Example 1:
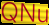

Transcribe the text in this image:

QNu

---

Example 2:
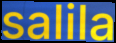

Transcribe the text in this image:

salila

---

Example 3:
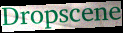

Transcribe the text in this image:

Dropscene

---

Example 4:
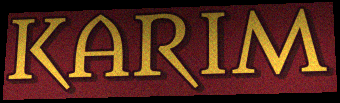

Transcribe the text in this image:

KARIM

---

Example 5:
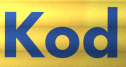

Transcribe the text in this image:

Kod